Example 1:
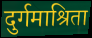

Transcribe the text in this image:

दुर्गमाश्रिता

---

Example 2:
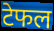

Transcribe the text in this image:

टेफल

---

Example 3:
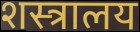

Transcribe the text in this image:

शस्त्रालय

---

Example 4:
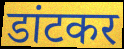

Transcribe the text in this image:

डांटकर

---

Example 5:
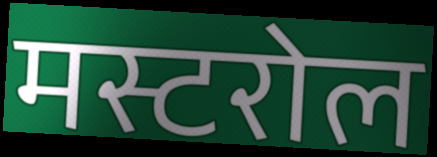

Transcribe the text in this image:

मस्टरोल